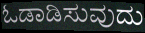
ಓಡಾಡಿಸುವುದು